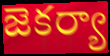
జెకర్యా